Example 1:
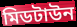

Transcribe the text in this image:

মিডটাউন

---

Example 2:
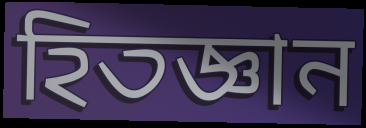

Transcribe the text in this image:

হিতজ্ঞান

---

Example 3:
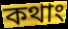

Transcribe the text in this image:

কথাং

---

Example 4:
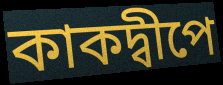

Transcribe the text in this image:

কাকদ্বীপে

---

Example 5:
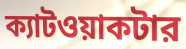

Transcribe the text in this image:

ক্যাটওয়াকটার